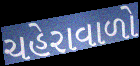
ચહેરાવાળો